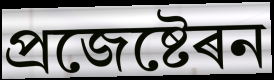
প্ৰজেষ্টেৰন